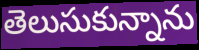
తెలుసుకున్నాను